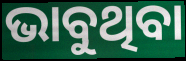
ଭାବୁଥିବା